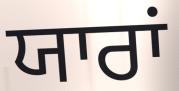
ਯਾਰਾਂ